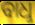
ବାଧୢ